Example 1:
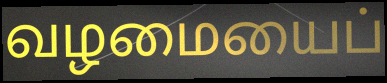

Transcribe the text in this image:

வழமையைப்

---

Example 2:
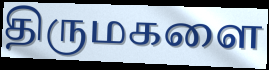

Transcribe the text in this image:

திருமகளை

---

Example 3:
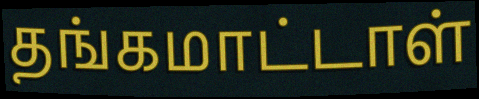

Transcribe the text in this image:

தங்கமாட்டாள்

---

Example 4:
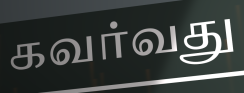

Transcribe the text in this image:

கவர்வது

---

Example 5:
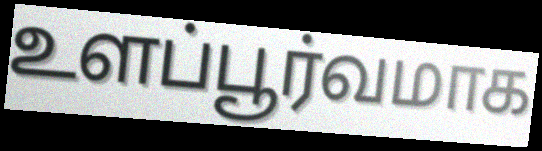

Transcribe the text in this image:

உளப்பூர்வமாக